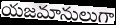
యజమానులుగా